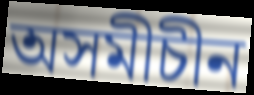
অসমীচীন